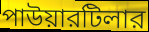
পাউয়ারটিলার